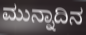
ಮುನ್ನಾದಿನ